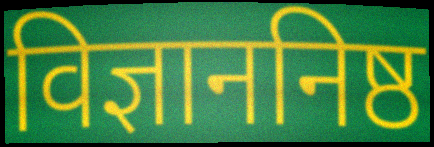
विज्ञाननिष्ठ